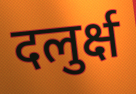
दलुर्क्ष